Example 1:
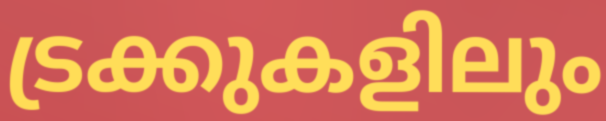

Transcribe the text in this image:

ട്രക്കുകളിലും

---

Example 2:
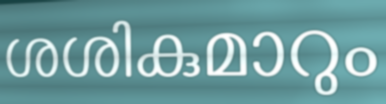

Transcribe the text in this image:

ശശികുമാറും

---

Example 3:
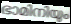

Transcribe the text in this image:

ഭാമിനിയും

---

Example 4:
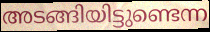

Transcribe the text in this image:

അടങ്ങിയിട്ടുണ്ടെന്ന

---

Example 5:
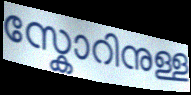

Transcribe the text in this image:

സ്കോറിനുള്ള